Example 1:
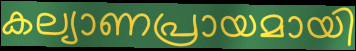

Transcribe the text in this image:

കല്യാണപ്രായമായി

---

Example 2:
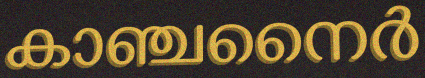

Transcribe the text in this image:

കാഞ്ചനൈർ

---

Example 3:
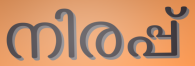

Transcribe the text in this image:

നിരപ്പ്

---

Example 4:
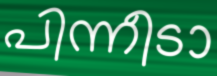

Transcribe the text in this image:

പിന്നീടാ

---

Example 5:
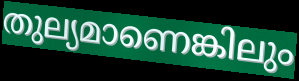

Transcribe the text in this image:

തുല്യമാണെങ്കിലും